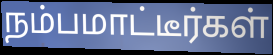
நம்பமாட்டீர்கள்